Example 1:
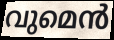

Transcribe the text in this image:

വുമെൻ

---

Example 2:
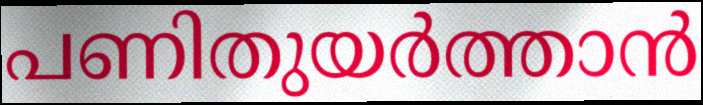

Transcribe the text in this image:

പണിതുയർത്താൻ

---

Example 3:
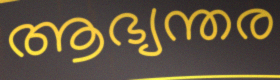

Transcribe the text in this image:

ആഭ്യന്തര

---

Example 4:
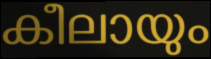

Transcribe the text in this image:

കീലായും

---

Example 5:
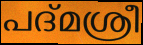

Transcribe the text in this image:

പദ്മശ്രീ